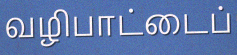
வழிபாட்டைப்